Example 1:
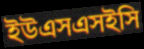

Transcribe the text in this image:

ইউএসএসইসি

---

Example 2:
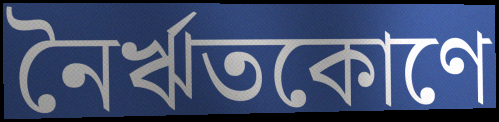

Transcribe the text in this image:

নৈর্ঋতকোণে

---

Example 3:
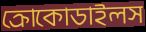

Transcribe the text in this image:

ক্রোকোডাইলস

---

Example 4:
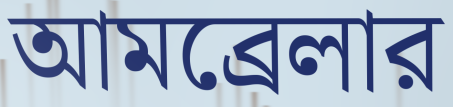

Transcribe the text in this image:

আমব্রেলার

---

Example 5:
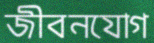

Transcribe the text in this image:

জীবনযোগ